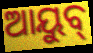
ଆୟୁବ୍